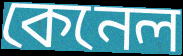
কেনেল